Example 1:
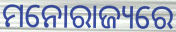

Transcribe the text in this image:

ମନୋରାଜ୍ୟରେ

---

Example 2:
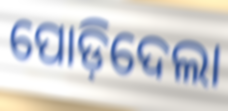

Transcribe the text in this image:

ପୋଡ଼ିଦେଲା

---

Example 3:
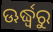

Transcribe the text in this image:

ଊର୍ଦ୍ଧ୍ଵରୁ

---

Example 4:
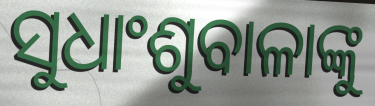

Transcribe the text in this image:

ସୁଧାଂଶୁବାଳାଙ୍କୁ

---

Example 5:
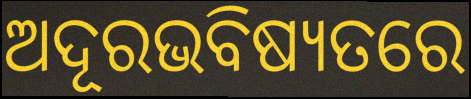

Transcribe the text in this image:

ଅଦୂରଭବିଷ୍ୟତରେ